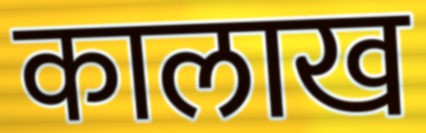
कालाख